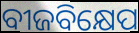
ବୀଜବିକ୍ଷେପ